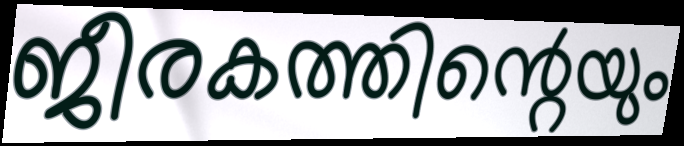
ജീരകത്തിന്റെയും